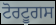
ਟੋਰਟੂਗਸ